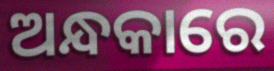
ଅନ୍ଧକାରେ